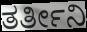
ತರ್ತೀನಿ